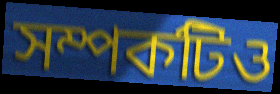
সম্পর্কটিও